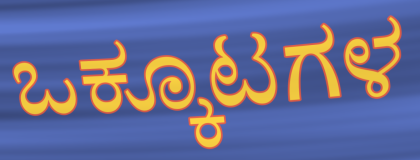
ಒಕ್ಕೂಟಗಳ